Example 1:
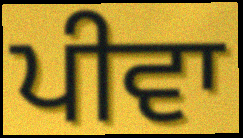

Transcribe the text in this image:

ਪੀਵਾ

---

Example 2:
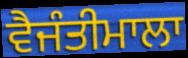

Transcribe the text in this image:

ਵੈਜੰਤੀਮਾਲਾ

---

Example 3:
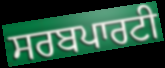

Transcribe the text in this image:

ਸਰਬਪਾਰਟੀ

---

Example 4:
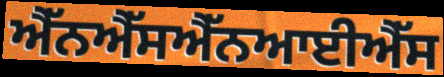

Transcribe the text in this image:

ਐੱਨਐੱਸਐੱਨਆਈਐੱਸ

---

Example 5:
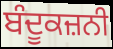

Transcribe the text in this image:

ਬੰਦੂਕਜ਼ਨੀ